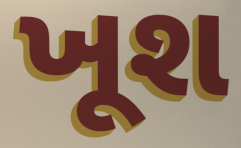
ખૂશ